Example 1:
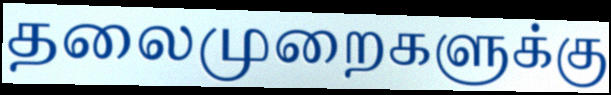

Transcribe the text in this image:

தலைமுறைகளுக்கு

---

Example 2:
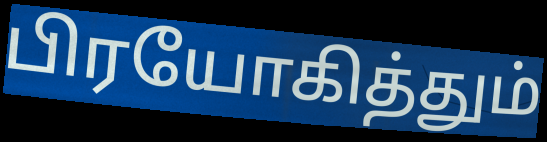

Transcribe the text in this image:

பிரயோகித்தும்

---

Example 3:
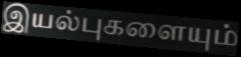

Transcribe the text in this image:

இயல்புகளையும்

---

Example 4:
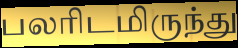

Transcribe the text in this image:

பலரிடமிருந்து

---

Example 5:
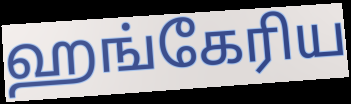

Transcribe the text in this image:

ஹங்கேரிய